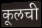
कूलची